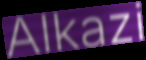
Alkazi